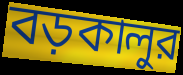
বড়কালুর